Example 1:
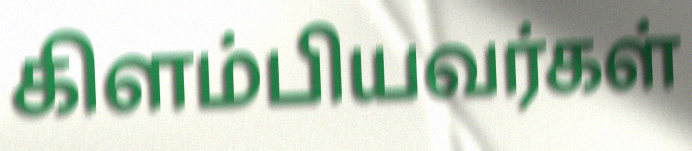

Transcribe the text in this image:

கிளம்பியவர்கள்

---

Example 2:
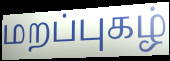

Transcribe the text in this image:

மறப்புகழ்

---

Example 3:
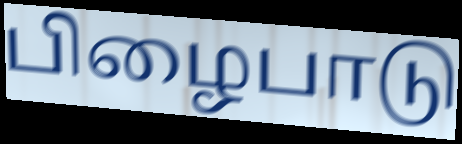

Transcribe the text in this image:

பிழைபாடு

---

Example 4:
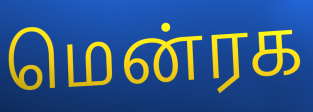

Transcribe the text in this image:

மென்ரக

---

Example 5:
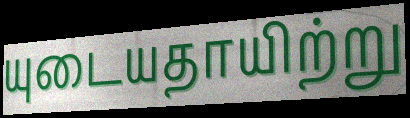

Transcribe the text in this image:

யுடையதாயிற்று